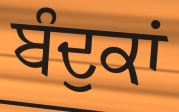
ਬੰਦੁਕਾਂ